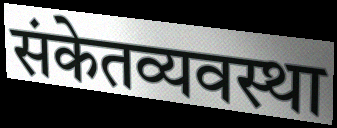
संकेतव्यवस्था